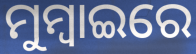
ମୁମ୍ୱାଇରେ